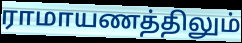
ராமாயணத்திலும்